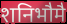
शनिभौमै